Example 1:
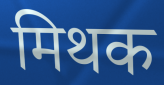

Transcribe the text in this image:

मिथक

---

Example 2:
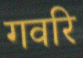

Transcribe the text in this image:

गवरि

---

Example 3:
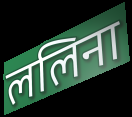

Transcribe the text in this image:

ललिना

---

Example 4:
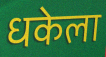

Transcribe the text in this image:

धकेला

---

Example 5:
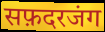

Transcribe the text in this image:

सफ़दरजंग